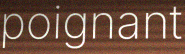
poignant